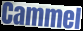
Cammel